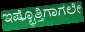
ಇಷ್ಟೊತ್ತಿಗಾಗಲೇ